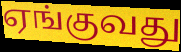
ஏங்குவது